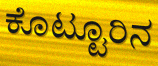
ಕೊಟ್ಟೂರಿನ